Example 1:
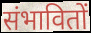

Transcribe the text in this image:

संभावितों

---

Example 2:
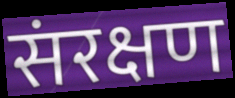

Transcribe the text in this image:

संरक्षण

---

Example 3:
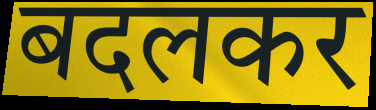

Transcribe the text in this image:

बदलकर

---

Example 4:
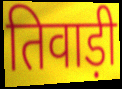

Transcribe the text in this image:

तिवाड़ी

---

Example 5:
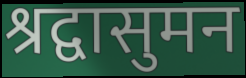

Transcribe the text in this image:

श्रद्वासुमन